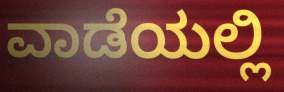
ವಾಡೆಯಲ್ಲಿ